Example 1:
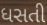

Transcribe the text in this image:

ધસતી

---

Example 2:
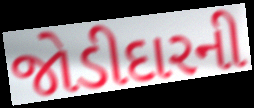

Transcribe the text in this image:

જોડીદારની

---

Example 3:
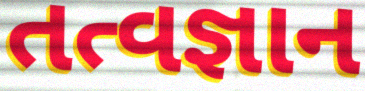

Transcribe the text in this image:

તત્વજ્ઞાન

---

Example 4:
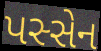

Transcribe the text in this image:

પસ્સેન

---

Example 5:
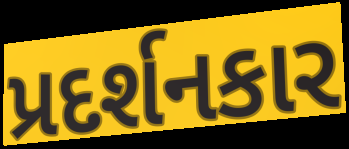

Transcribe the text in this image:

પ્રદર્શનકાર